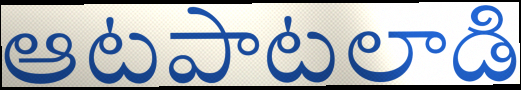
ఆటపాటలాడి